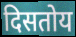
दिसतोय